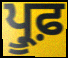
ਪ੍ਰੂਫ਼